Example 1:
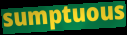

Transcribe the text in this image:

sumptuous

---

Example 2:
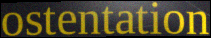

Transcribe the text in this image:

ostentation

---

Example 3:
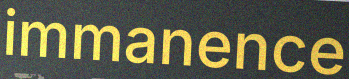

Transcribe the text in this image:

immanence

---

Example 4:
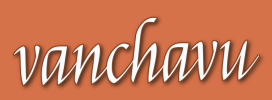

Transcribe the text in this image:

vanchavu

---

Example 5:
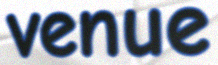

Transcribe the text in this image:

venue